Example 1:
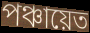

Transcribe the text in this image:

পঞ্চায়েত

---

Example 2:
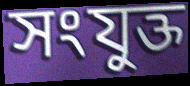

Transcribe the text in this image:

সংযুক্ত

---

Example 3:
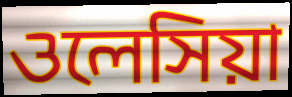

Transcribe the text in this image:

ওলেসিয়া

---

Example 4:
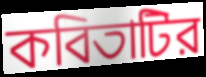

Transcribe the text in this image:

কবিতাটির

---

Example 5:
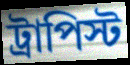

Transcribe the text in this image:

ট্রাপিস্ট